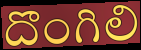
దొంగిలి